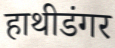
हाथीडंगर